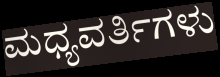
ಮಧ್ಯವರ್ತಿಗಳು